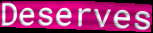
Deserves